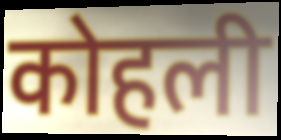
कोहली